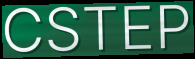
CSTEP